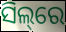
ସିଲ୍‌ରେ